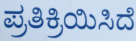
ಪ್ರತಿಕ್ರಿಯಿಸಿದೆ